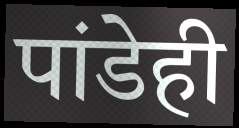
पांडेही